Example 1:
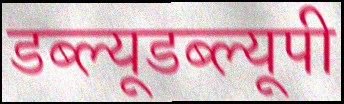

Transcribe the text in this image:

डब्ल्यूडब्ल्यूपी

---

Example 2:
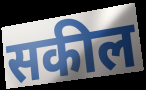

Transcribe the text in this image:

सकील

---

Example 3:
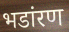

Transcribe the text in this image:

भडांरण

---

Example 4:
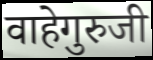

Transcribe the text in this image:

वाहेगुरुजी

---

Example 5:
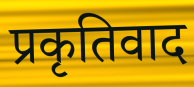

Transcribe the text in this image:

प्रकृतिवाद